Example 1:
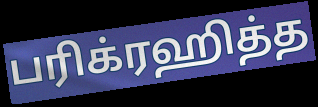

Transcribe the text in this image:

பரிக்ரஹித்த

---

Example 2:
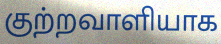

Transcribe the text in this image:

குற்றவாளியாக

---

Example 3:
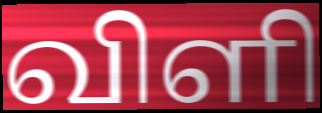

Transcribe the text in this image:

விளி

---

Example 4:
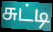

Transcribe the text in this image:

சுட்டி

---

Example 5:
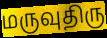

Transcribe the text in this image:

மருவுதிரு